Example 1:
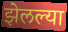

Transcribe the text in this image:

झेलल्या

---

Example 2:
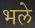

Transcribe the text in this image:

भले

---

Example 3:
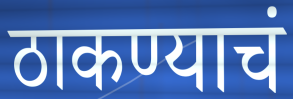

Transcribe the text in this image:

ठाकण्याचं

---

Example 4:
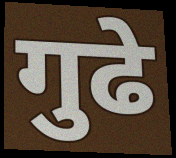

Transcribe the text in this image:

गुढे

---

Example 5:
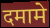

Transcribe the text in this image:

दमामे